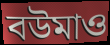
বউমাও